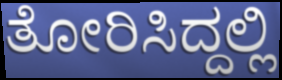
ತೋರಿಸಿದ್ದಲ್ಲಿ